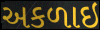
અકળાઇ